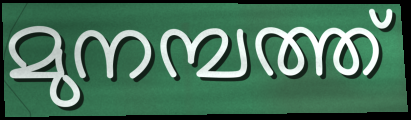
മുനമ്പത്ത്